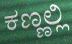
ಕಣ್ಣಲ್ಲಿ